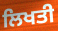
ਲਿਖਤੀ